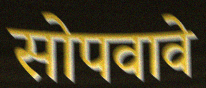
सोपवावे